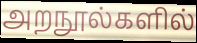
அறநூல்களில்